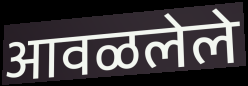
आवळलेले